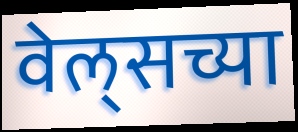
वेल्सच्या